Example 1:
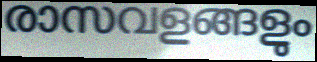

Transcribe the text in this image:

രാസവളങ്ങളും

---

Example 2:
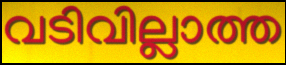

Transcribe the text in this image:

വടിവില്ലാത്ത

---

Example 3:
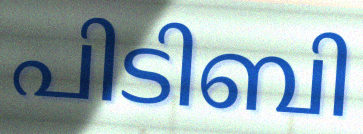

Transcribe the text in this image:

പിടിബി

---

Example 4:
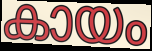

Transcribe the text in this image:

കായം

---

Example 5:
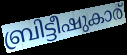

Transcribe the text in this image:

ബ്രിട്ടീഷുകാര്